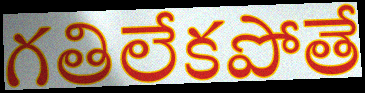
గతిలేకపోతే